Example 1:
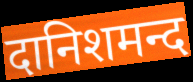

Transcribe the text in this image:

दानिशमन्द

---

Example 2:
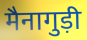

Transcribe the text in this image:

मैनागुड़ी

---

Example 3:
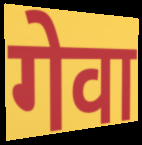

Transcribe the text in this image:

गेवा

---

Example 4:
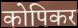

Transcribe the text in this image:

कोपिकर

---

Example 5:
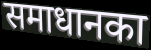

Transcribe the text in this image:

समाधानका